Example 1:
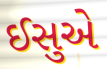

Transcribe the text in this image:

ઈસુએ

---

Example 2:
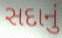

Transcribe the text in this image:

સદાનું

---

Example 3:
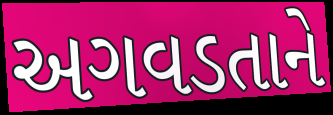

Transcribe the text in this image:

અગવડતાને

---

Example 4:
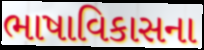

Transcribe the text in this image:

ભાષાવિકાસના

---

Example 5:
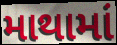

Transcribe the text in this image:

માથામાં